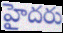
హైదరు